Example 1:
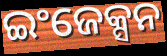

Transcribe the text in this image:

ଇଂଜେକ୍ସନ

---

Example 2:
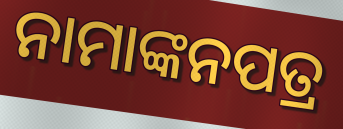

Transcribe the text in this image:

ନାମାଙ୍କନପତ୍ର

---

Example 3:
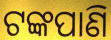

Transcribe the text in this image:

ଟଙ୍କପାଣି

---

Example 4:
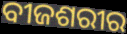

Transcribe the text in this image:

ବୀଜଶରୀର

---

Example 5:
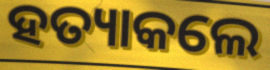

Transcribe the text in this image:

ହତ୍ୟାକଲେ